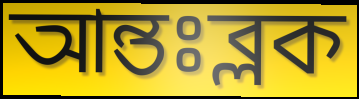
আন্তঃব্লক